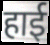
हाई